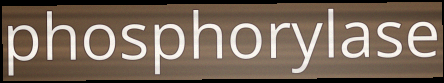
phosphorylase